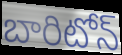
బారిటోన్